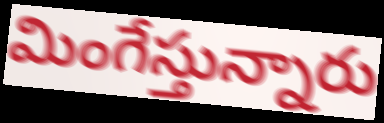
మింగేస్తున్నారు